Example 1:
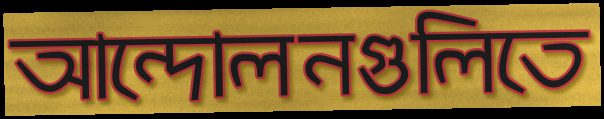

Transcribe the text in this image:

আন্দোলনগুলিতে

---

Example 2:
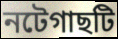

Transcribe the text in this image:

নটেগাছটি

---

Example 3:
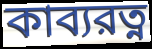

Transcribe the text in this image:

কাব্যরত্ন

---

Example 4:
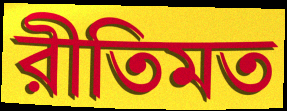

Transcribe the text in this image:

রীতিমত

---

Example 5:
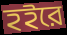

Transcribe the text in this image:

হইরে